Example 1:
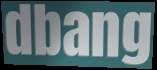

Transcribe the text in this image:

dbang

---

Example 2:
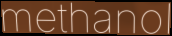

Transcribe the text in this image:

methanol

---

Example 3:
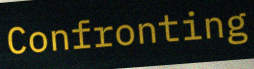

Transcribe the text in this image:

Confronting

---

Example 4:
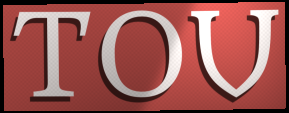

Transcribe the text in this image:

TOU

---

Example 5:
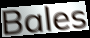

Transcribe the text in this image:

Bales